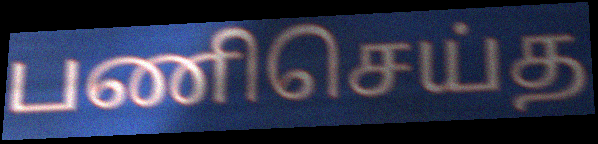
பணிசெய்த